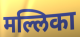
मल्लिका